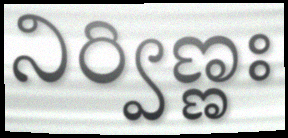
నిర్విణ్ణః